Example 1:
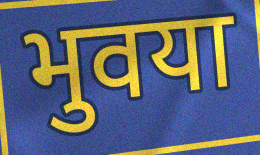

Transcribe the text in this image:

भुवया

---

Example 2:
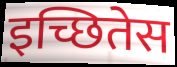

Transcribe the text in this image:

इच्छितेस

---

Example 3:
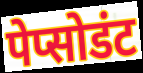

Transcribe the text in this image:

पेप्सोडंट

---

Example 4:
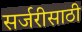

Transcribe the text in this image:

सर्जरीसाठी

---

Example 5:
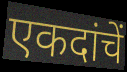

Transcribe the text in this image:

एकदांचें